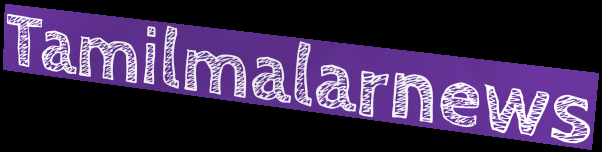
Tamilmalarnews